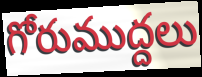
గోరుముద్దలు